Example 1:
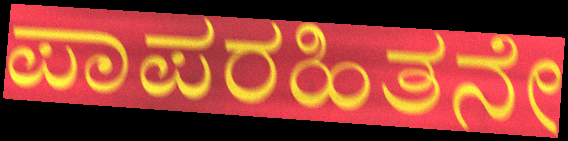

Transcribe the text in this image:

ಪಾಪರಹಿತನೇ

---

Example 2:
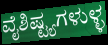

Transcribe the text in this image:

ವೈಶಿಷ್ಟ್ಯಗಳುಳ್ಳ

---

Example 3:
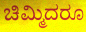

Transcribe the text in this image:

ಚಿಮ್ಮಿದರೂ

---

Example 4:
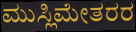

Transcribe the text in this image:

ಮುಸ್ಲಿಮೇತರರ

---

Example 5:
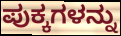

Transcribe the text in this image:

ಪುಕ್ಕಗಳನ್ನು